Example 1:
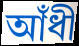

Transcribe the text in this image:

আঁধী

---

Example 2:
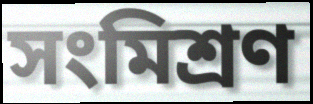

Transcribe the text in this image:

সংমিশ্রণ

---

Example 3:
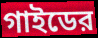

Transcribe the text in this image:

গাইডের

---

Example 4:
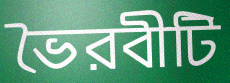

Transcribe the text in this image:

ভৈরবীটি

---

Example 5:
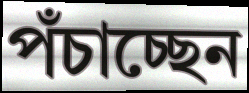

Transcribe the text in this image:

পঁচাচ্ছেন